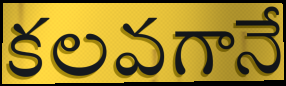
కలవగానే